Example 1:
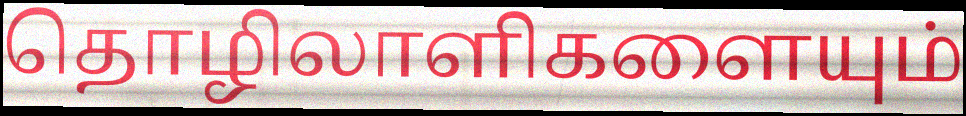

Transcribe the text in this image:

தொழிலாளிகளையும்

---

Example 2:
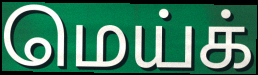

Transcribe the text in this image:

மெய்க்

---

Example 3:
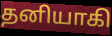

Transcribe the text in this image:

தனியாகி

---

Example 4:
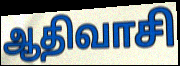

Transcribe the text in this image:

ஆதிவாசி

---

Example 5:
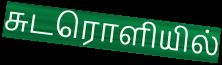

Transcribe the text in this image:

சுடரொளியில்